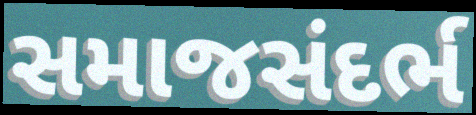
સમાજસંદર્ભ